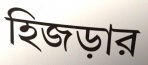
হিজড়ার